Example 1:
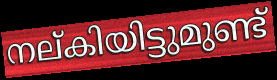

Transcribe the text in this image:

നല്കിയിട്ടുമുണ്ട്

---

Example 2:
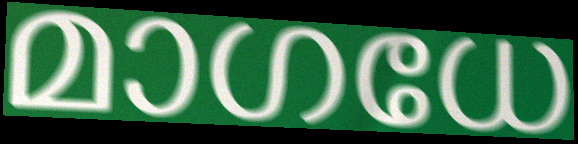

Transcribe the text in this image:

മാഗധേ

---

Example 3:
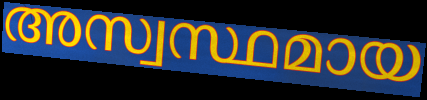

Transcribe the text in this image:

അസ്വസ്ഥമായ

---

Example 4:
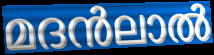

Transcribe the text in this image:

മദൻലാൽ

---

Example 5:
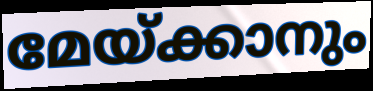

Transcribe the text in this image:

മേയ്ക്കാനും